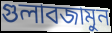
গুলাবজামুন